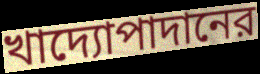
খাদ্যোপাদানের